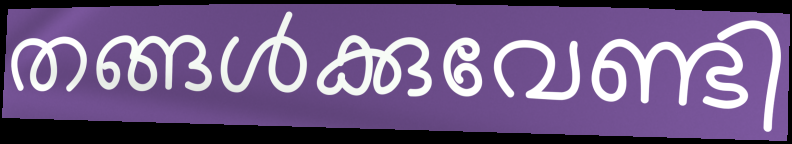
തങ്ങൾക്കുവേണ്ടി